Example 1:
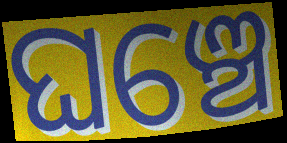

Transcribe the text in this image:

ଘଞ୍ଚେ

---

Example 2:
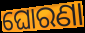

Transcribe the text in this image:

ଘୋରଣା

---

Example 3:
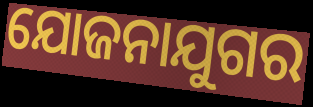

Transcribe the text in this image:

ଯୋଜନାଯୁଗର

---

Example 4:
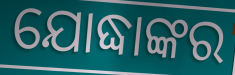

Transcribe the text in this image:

ଯୋଦ୍ଧାଙ୍କର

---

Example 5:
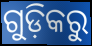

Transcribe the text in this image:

ଗୁଡ଼ିକରୁ